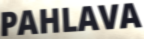
PAHLAVA